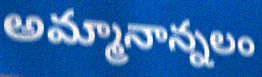
అమ్మానాన్నలం